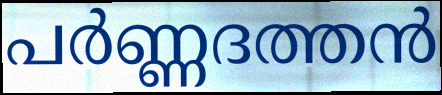
പർണ്ണദത്തൻ